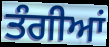
ਤੰਗੀਆਂ